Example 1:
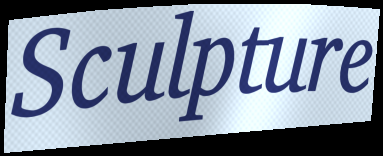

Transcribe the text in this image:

Sculpture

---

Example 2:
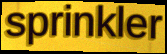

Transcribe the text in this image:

sprinkler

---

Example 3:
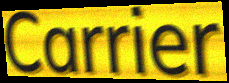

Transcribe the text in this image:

Carrier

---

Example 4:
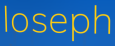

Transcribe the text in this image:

Ioseph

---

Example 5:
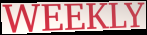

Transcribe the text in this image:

WEEKLY